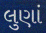
લુણાં